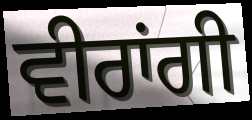
ਵੀਰਾਂਗੀ